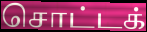
சொட்டக்